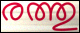
രത്തു